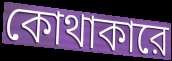
কোথাকারে